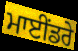
ਮਾਈਂਡਰੇ